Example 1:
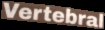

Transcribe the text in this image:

Vertebral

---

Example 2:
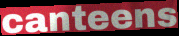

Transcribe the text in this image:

canteens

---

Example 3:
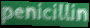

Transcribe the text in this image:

penicillin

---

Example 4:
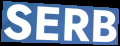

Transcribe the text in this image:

SERB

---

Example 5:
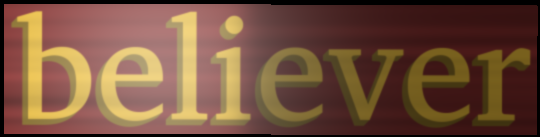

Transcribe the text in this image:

believer